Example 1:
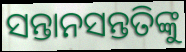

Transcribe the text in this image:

ସନ୍ତାନସନ୍ତତିଙ୍କୁ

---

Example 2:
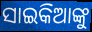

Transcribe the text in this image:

ସାଇକିଆଙ୍କୁ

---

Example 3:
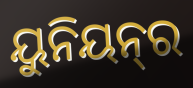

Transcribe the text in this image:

ୟୁନିୟନ୍‌ର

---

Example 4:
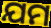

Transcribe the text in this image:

ଯମ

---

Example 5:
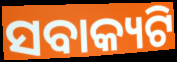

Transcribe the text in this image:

ସବାକ୍ୟଟି